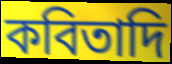
কবিতাদি